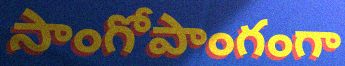
సాంగోపాంగంగా